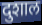
दुशाल